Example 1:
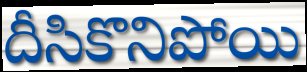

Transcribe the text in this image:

దీసికొనిపోయి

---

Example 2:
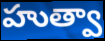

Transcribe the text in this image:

హుత్వా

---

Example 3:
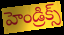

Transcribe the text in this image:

హెండ్రిక్స్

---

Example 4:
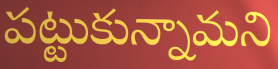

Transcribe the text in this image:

పట్టుకున్నామని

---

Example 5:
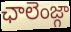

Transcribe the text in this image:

ఛాలెంజ్గా